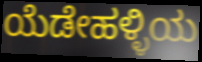
ಯೆಡೇಹಳ್ಳಿಯ